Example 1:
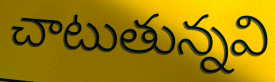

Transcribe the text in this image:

చాటుతున్నవి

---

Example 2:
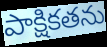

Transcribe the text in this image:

పాక్షికతను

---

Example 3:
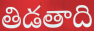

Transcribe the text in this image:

తిడతాది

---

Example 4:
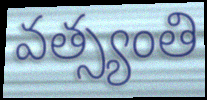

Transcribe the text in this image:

వత్స్యంతి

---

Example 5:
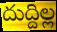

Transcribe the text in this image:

దుద్దిల్ల